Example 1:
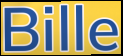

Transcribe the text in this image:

Bille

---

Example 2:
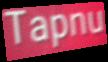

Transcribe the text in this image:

Tapnu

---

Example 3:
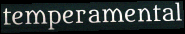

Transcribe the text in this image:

temperamental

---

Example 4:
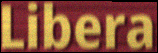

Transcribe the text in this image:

Libera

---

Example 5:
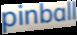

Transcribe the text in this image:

pinball